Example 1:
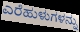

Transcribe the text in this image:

ಎರೆಹುಳುಗಳನ್ನು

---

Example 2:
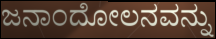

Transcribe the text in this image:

ಜನಾಂದೋಲನವನ್ನು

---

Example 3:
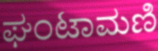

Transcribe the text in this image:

ಘಂಟಾಮಣಿ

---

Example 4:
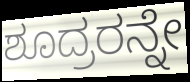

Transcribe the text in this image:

ಶೂದ್ರರನ್ನೇ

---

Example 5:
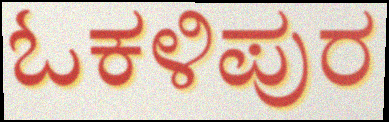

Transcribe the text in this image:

ಓಕಳಿಪುರ